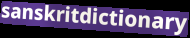
sanskritdictionary